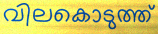
വിലകൊടുത്ത്